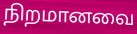
நிறமானவை